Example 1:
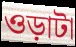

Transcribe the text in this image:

ওড়াটা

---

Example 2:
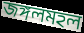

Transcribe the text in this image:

জঙ্গলমহল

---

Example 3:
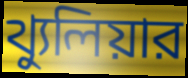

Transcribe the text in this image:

থ্যুলিয়ার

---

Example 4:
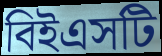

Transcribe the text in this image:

বিইএসটি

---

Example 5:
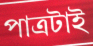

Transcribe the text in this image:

পাত্রটাই